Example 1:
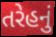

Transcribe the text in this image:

તરેહનું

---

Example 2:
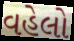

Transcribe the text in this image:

વહેલો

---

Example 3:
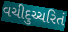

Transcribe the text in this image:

વચીદુચ્ચરિતં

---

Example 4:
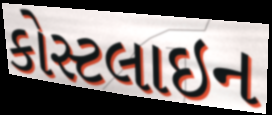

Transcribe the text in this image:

કોસ્ટલાઇન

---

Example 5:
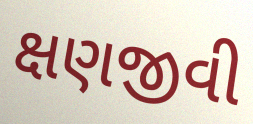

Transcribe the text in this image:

ક્ષણજીવી